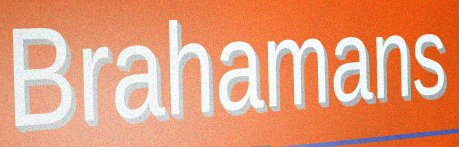
Brahamans